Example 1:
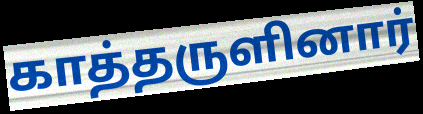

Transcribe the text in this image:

காத்தருளினார்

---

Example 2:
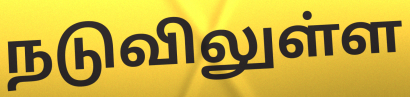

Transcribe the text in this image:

நடுவிலுள்ள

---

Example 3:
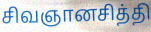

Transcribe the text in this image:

சிவஞானசித்தி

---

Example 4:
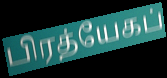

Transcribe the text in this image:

பிரத்யேகப்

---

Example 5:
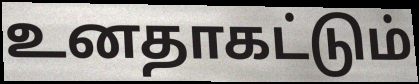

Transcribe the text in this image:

உனதாகட்டும்